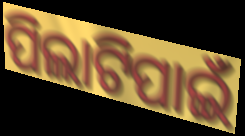
ପିଲାଟିପାଇଁ